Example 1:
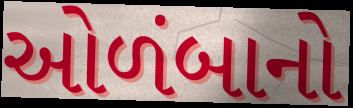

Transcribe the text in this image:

ઓળંબાનો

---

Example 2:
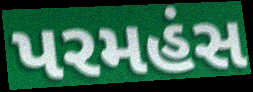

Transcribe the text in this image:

પરમહંસ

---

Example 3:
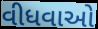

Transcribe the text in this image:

વીધવાઓ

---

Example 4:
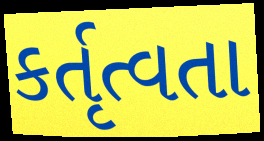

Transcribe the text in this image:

કર્તૃત્વતા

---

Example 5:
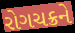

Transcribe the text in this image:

રોગચક્રને